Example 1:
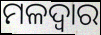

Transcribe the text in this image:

ମଳଦ୍ୱାର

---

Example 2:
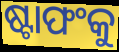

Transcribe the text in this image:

ଷ୍ଟାଫଂକୁ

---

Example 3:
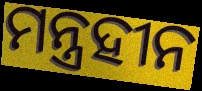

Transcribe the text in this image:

ମନ୍ତ୍ରହୀନ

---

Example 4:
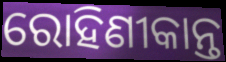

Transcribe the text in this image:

ରୋହିଣୀକାନ୍ତ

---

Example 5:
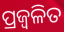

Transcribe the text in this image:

ପ୍ରଜ୍ୱଳିତ